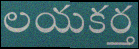
లయకర్త